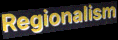
Regionalism